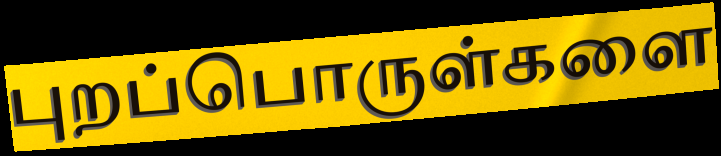
புறப்பொருள்களை